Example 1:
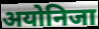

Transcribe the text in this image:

अयोनिजा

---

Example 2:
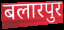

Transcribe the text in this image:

बलारपुर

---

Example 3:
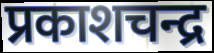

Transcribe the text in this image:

प्रकाशचन्द्र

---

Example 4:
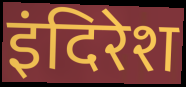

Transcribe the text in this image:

इंदिरेश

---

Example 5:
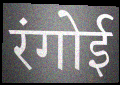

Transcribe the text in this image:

रंगोई